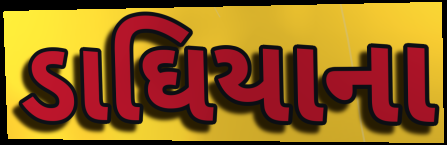
ડાઘિયાના